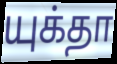
யுக்தா